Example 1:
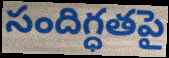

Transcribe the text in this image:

సందిగ్ధతపై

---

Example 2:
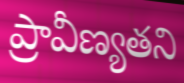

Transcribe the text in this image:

ప్రావీణ్యతని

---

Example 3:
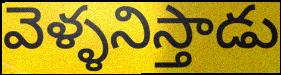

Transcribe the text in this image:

వెళ్ళనిస్తాడు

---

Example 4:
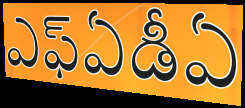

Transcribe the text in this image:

ఎఫ్ఏడీఏ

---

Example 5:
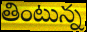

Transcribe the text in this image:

తింటున్న